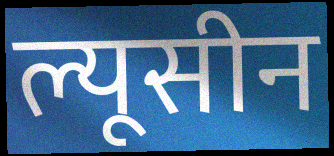
ल्यूसीन